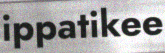
ippatikee